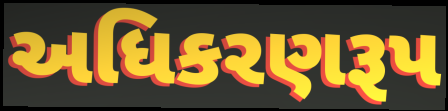
અધિકરણરૂપ